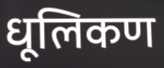
धूलिकण